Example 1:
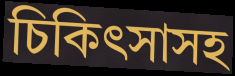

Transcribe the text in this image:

চিকিৎসাসহ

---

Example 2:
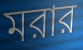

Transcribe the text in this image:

মরার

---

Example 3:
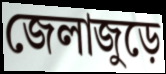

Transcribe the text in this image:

জেলাজুড়ে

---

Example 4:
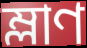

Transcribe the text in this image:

ম্লাণ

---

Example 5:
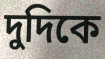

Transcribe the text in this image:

দুদিকে